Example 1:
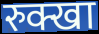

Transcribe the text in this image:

रुक्खा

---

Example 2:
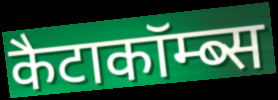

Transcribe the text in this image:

कैटाकॉम्ब्स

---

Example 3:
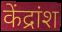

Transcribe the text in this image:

केंद्रांश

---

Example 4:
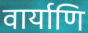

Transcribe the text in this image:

वार्याणि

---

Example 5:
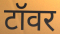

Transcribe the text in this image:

टॉवर